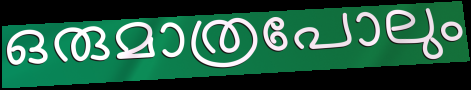
ഒരുമാത്രപോലും